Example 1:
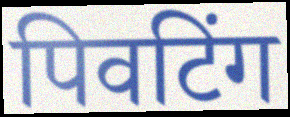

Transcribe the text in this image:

पिवटिंग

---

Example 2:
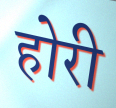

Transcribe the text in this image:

होरी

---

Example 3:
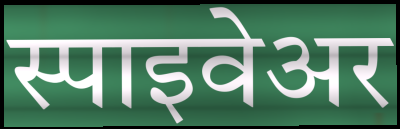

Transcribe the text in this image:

स्पाइवेअर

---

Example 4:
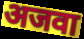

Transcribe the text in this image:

अजवा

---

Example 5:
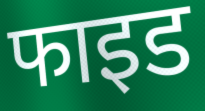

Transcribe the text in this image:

फाइड